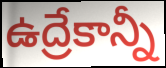
ఉద్రేకాన్నీ